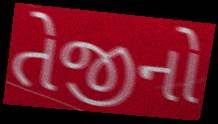
તેજીનો